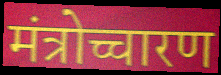
मंत्रोच्चारण